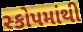
સ્કોપમાંથી